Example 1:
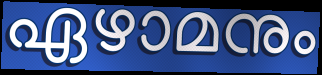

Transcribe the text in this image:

ഏഴാമനും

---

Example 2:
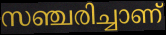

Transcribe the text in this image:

സഞ്ചരിച്ചാണ്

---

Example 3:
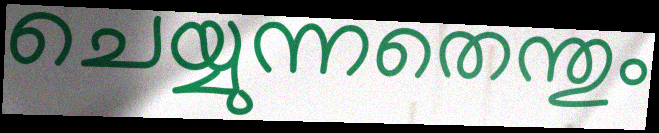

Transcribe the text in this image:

ചെയ്യുന്നതെന്തും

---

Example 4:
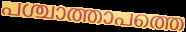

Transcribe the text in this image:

പശ്ചാത്താപത്തെ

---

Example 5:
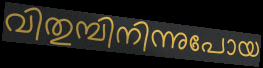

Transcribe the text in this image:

വിതുമ്പിനിന്നുപോയ